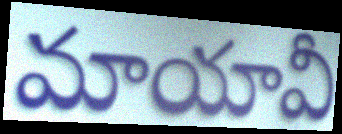
మాయావీ